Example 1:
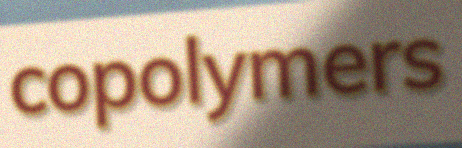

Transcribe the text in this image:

copolymers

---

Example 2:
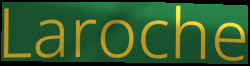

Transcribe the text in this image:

Laroche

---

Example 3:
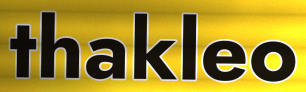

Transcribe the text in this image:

thakleo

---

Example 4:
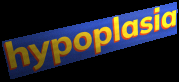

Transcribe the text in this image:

hypoplasia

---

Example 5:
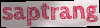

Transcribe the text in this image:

saptrang